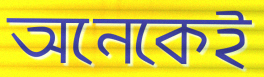
অনেকেই